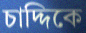
চাদ্দিকে